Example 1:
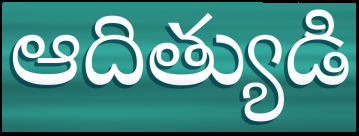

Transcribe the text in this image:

ఆదిత్యుడి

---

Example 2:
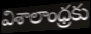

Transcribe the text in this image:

విశాలాంధ్రకు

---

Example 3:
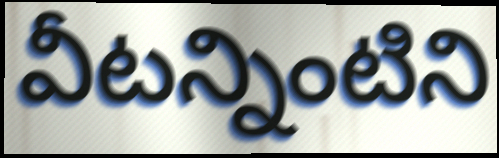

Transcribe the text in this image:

వీటన్నింటిని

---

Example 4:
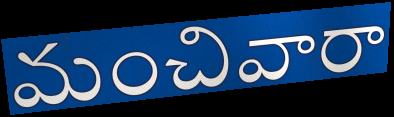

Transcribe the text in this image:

మంచివారా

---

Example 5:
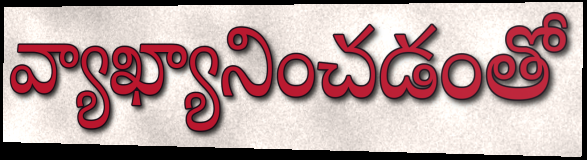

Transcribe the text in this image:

వ్యాఖ్యానించడంతో